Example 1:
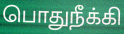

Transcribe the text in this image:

பொதுநீக்கி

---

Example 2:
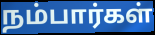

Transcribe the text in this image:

நம்பார்கள்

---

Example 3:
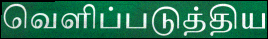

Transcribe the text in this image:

வெளிப்படுத்திய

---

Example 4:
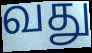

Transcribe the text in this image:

வது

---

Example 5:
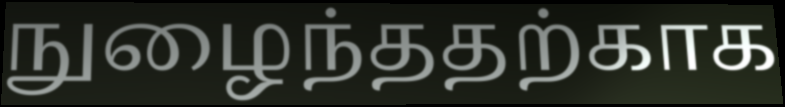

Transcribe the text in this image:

நுழைந்ததற்காக